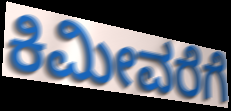
ಕಿಮೀವರೆಗೆ